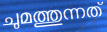
ചുമത്തുന്നത്